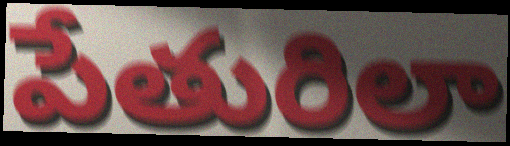
పేతురిలా